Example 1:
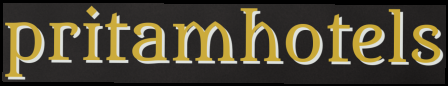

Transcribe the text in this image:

pritamhotels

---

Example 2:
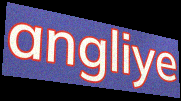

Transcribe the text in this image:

angliye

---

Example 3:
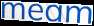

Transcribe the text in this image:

meam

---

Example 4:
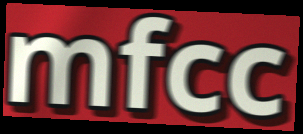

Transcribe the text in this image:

mfcc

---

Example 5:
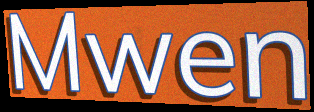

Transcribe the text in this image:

Mwen